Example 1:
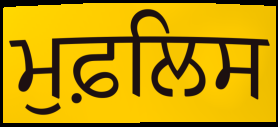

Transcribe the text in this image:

ਮੁਫ਼ਲਿਸ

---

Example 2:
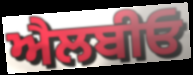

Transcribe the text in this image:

ਐਲਬੀਓ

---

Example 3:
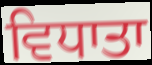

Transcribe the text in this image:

ਵਿਧਾਤਾ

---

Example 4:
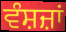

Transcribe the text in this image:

ਵੰਸ਼ਜ਼ਾਂ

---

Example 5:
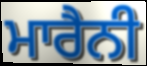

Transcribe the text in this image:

ਮਾਰੈਨੀ